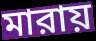
মারায়